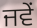
ਜਵੇਂ